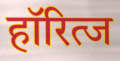
हॉरित्ज